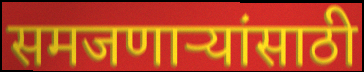
समजणाऱ्यांसाठी